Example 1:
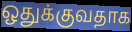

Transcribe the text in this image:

ஒதுக்குவதாக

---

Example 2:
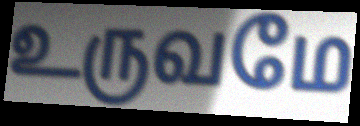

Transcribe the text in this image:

உருவமே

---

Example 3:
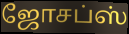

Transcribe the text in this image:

ஜோசப்ஸ்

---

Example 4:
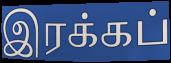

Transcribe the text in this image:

இரக்கப்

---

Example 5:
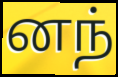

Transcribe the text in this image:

னந்